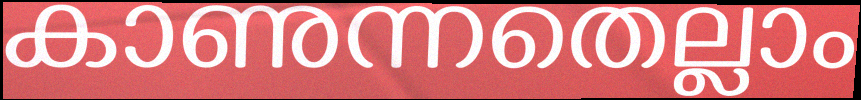
കാണുന്നതെല്ലാം